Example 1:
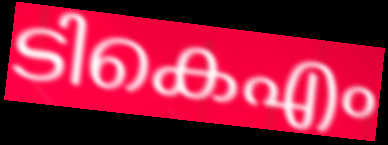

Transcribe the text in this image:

ടികെഎം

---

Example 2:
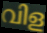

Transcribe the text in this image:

വിള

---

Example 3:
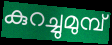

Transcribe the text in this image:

കുറച്ചുമുമ്പ്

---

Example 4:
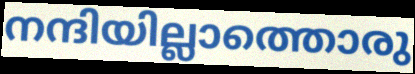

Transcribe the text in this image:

നന്ദിയില്ലാത്തൊരു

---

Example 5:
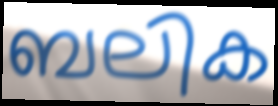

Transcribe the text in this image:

ബലിക